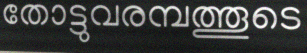
തോട്ടുവരമ്പത്തൂടെ